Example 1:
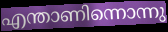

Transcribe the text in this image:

എന്താണിന്നൊന്നു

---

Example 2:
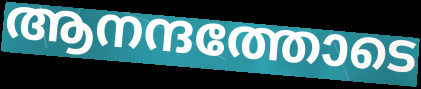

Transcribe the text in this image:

ആനന്ദത്തോടെ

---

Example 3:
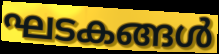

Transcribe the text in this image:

ഘടകങ്ങൾ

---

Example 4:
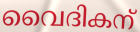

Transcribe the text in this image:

വൈദികന്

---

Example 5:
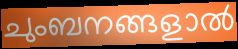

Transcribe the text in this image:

ചുംബനങ്ങളാൽ